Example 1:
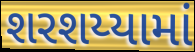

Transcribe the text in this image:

શરશય્યામાં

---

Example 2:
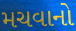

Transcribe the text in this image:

મચવાનો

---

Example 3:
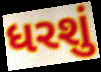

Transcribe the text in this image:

ધરશું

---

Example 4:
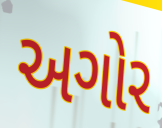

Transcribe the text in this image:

અગોર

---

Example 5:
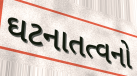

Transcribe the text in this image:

ઘટનાતત્વનો